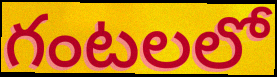
గంటలలో